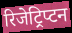
रिजेट्रिप्टन